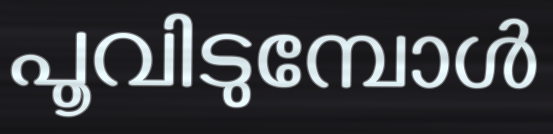
പൂവിടുമ്പോൾ